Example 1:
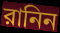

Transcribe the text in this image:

রানিন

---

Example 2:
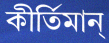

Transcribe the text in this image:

কীর্তিমান্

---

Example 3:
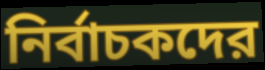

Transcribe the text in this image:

নির্বাচকদের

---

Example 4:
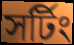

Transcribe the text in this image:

সর্টিং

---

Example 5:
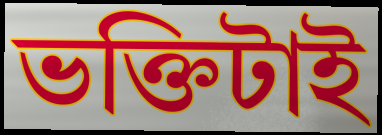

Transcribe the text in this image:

ভক্তিটাই